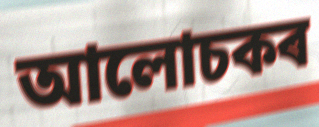
আলোচকৰ